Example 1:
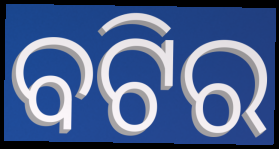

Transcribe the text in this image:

ବଟିର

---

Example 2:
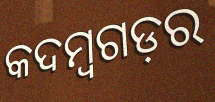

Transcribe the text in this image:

କଦମ୍ବଗଡ଼ର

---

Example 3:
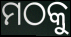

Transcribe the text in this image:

ମଠକୁ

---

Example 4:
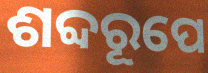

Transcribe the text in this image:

ଶବ୍ଦରୂପେ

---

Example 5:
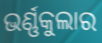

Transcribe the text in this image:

ଭର୍ଣ୍ଣକୁଲାର